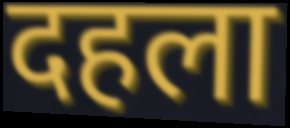
दहला